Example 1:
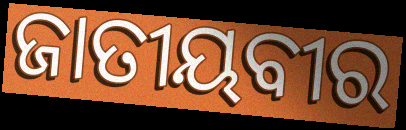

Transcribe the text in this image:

ଜାତୀୟବୀର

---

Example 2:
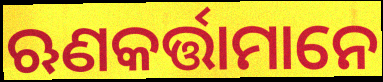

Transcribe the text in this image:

ଋଣକର୍ତ୍ତାମାନେ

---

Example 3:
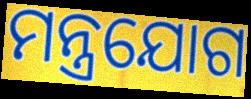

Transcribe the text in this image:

ମନ୍ତ୍ରଯୋଗ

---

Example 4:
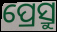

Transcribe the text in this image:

ପ୍ରେସ୍ରୁ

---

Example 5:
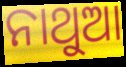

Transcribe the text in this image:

ନାଥୁଆ